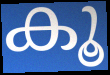
കൂ